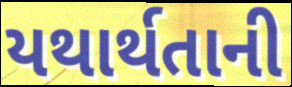
યથાર્થતાની